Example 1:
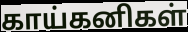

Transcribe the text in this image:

காய்கனிகள்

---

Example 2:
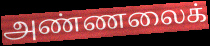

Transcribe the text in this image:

அண்ணலைக்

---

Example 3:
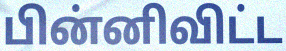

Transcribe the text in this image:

பின்னிவிட்ட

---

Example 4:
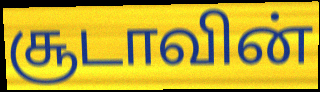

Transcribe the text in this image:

சூடாவின்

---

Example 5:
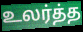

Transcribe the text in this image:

உலர்த்த